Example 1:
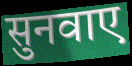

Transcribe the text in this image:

सुनवाए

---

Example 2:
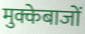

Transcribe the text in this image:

मुक्केबाजों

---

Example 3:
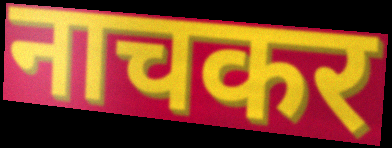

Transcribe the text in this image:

नाचकर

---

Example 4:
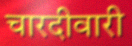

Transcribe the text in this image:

चारदीवारी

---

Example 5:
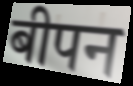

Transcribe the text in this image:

बीपन